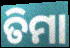
ତିମା